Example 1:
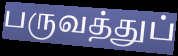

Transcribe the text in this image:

பருவத்துப்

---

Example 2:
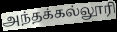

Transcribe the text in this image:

அந்தக்கல்லூரி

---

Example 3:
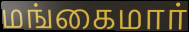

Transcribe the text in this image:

மங்கைமார்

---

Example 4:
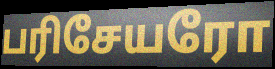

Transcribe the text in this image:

பரிசேயரோ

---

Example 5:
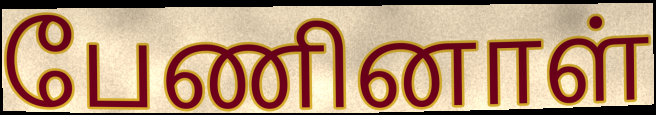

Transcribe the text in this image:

பேணினாள்